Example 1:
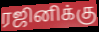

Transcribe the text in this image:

ரஜினிக்கு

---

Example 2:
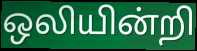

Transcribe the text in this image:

ஒலியின்றி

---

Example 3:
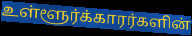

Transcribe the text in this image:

உள்ளூர்க்காரர்களின்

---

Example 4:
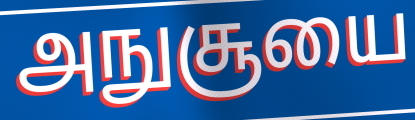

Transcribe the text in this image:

அநுசூயை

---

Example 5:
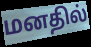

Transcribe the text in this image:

மனதில்